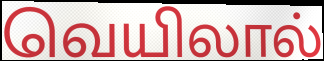
வெயிலால்